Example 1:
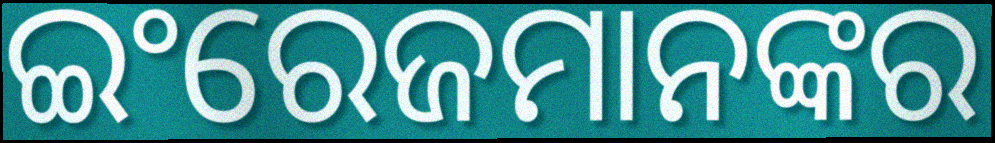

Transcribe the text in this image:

ଇଂରେଜମାନଙ୍କର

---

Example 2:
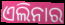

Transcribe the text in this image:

ଏଲିନାର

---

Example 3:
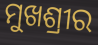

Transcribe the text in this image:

ମୁଖଶ୍ରୀର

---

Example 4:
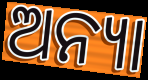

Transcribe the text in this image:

ଅନ୍ୟା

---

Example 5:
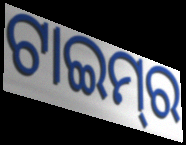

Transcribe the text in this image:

ଟାଇମ୍‌ର